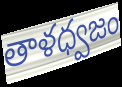
తాళధ్వజం